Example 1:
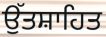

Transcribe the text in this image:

ਉੱਤਸ਼ਾਹਿਤ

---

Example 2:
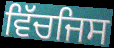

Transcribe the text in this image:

ਵਿੱਚਜਿਸ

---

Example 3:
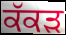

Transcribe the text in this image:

ਕੱਕਡ਼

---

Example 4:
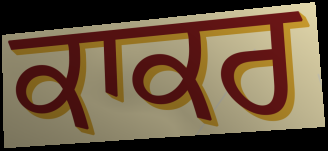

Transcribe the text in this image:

ਕਾਕਰ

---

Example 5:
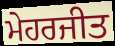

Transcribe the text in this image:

ਮੇਹਰਜੀਤ